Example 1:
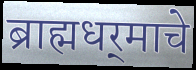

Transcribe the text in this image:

ब्राह्मधर्माचे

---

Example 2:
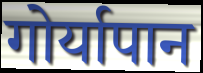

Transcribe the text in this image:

गोर्यापान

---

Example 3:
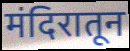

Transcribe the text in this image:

मंदिरातून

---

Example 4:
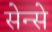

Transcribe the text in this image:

सेन्से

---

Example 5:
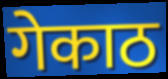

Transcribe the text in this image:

गेकाठ